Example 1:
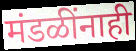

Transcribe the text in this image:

मंडळींनाही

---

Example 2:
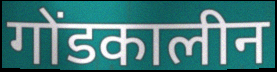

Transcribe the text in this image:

गोंडकालीन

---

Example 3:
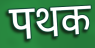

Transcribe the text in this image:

पथक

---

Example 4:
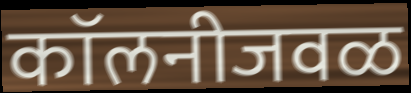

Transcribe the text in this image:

कॉलनीजवळ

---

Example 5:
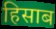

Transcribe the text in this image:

हिसाब